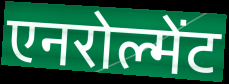
एनरोल्मेंट